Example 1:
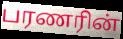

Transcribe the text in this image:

பரணரின்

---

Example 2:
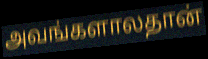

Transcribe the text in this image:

அவங்களாலதான்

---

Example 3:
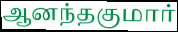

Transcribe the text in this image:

ஆனந்தகுமார்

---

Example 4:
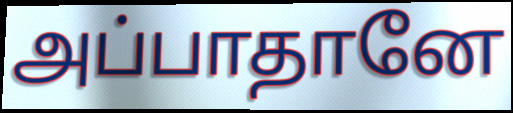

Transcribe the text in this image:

அப்பாதானே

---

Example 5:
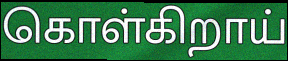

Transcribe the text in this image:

கொள்கிறாய்